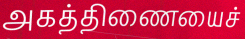
அகத்திணையைச்